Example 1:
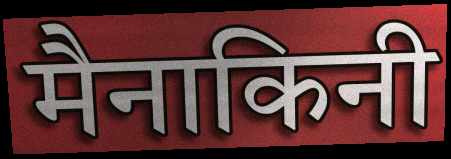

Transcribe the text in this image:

मैनाकिनी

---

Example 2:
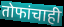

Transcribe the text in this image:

तोफांचाही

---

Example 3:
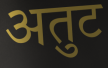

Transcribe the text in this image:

अतुट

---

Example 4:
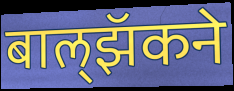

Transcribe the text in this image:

बाल्झॅकने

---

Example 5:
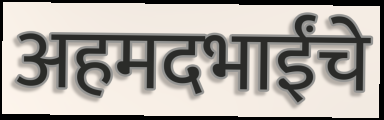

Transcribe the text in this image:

अहमदभाईंचे